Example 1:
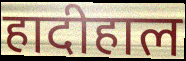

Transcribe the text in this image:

हादीहाल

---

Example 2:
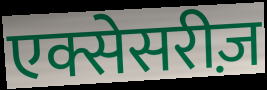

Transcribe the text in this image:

एक्सेसरीज़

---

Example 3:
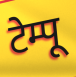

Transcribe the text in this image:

टेम्पू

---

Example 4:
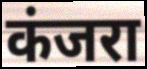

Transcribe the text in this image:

कंजरा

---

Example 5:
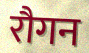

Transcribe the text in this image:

रौगन